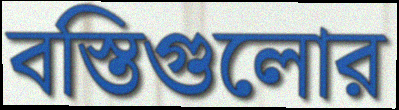
বস্তিগুলোর